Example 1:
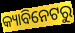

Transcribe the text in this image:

କ୍ୟାବିନେଟରୁ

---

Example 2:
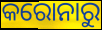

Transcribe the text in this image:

କରୋନାରୁ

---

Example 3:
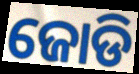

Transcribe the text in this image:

ଜୋଡି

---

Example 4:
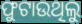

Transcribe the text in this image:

ଫୁଟାଉଥିଲୁ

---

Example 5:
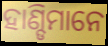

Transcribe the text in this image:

ହାଣ୍ଡିମାନେ